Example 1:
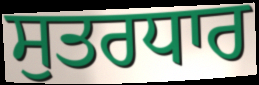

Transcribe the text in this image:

ਸੁਤਰਧਾਰ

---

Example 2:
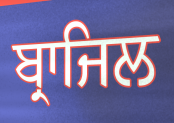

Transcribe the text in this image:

ਬ੍ਰਾਜਿਲ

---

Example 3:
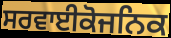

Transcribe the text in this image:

ਸਰਵਾਈਕੋਜਨਿਕ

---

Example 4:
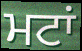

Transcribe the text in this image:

ਮਟਾਂ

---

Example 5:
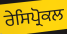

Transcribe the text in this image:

ਰੇਸਿਪ੍ਰੋਕਲ